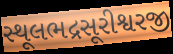
સ્થૂલભદ્રસૂરીશ્વરજી